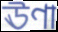
ঊণা